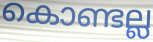
കൊണ്ടല്ല